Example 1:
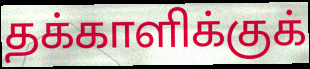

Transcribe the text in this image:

தக்காளிக்குக்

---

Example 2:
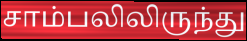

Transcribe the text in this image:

சாம்பலிலிருந்து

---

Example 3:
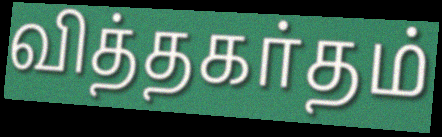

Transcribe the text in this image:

வித்தகர்தம்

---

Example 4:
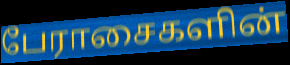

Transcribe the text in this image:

பேராசைகளின்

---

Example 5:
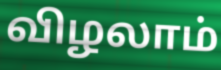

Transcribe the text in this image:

விழலாம்